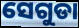
ସେଗୁଡା